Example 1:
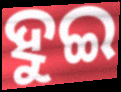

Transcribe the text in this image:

ହୁଇ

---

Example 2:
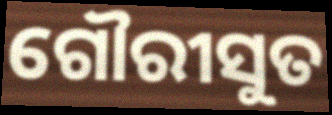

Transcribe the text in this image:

ଗୌରୀସୁତ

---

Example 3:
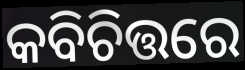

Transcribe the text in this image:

କବିଚିତ୍ତରେ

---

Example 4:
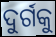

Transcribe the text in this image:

ଦୁର୍ଗକୁ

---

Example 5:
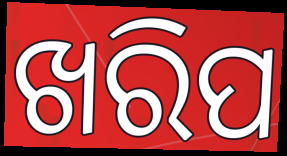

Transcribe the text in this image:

ଖରିପ